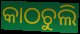
କାଠଚୁଲି